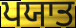
ਪਯਾਤ